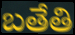
బతేతి